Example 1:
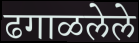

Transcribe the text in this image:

ढगाळलेले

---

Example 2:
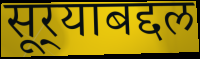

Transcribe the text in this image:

सूर्याबद्दल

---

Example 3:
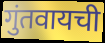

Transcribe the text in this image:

गुंतवायची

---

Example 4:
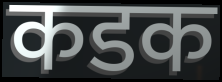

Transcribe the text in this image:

कडक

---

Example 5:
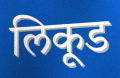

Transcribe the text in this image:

लिकूड